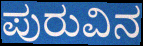
ಪುರುವಿನ